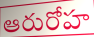
ఆరురోహ